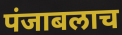
पंजाबलाच